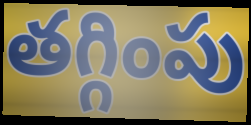
తగ్గింపు